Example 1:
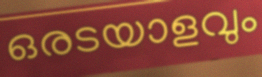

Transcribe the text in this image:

ഒരടയാളവും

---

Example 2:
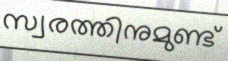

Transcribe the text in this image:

സ്വരത്തിനുമുണ്ട്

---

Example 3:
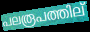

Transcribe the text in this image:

പലരൂപത്തില്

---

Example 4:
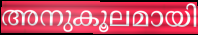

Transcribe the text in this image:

അനുകൂലമായി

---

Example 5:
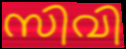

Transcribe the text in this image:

സിവി